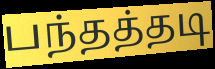
பந்தத்தடி